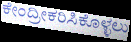
ಕೇಂದ್ರೀಕರಿಸಿಕೊಳ್ಳಲು